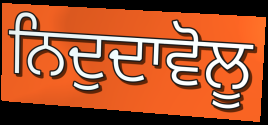
ਨਿਦੁਦਾਵੋਲੂ